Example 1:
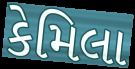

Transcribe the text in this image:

કેમિલા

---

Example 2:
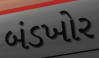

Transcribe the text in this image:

બંડખોર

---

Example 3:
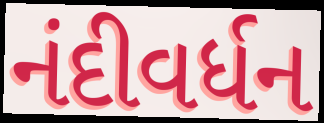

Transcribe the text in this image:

નંદીવર્ધન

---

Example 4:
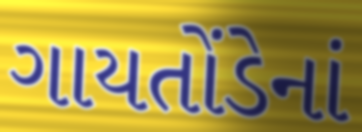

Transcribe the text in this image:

ગાયતોંડેનાં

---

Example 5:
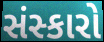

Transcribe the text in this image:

સંસ્કારો